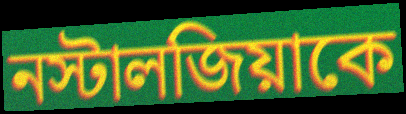
নস্টালজিয়াকে